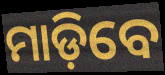
ମାଡ଼ିବେ